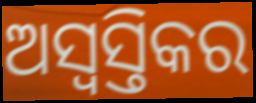
ଅସ୍ୱସ୍ତିକର